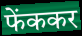
फेंककर